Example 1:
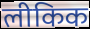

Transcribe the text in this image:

लीकिक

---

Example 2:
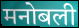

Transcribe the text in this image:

मनोबली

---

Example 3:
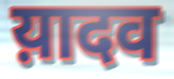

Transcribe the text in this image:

य़ादव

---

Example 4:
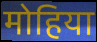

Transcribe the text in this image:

मोहिया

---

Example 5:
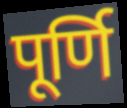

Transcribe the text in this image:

पूर्णि